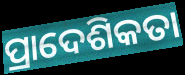
ପ୍ରାଦେଶିକତା